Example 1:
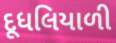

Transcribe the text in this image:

દૂધલિયાળી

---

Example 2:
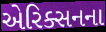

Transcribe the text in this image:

એરિક્સનના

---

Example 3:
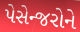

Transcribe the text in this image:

પેસેન્જરોને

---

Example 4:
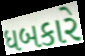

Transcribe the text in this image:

ધબકારે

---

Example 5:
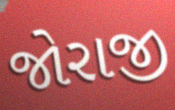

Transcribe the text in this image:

જોરાજી